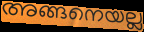
അങ്ങനെയല്ല